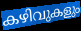
കഴിവുകളും